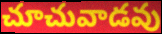
చూచువాడవు